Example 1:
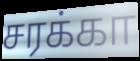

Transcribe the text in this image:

சரக்கா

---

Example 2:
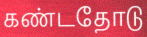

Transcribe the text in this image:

கண்டதோடு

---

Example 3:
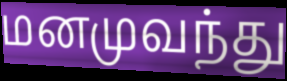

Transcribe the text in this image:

மனமுவந்து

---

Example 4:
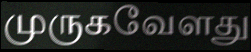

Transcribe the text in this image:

முருகவேளது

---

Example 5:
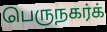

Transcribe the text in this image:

பெருநகர்க்